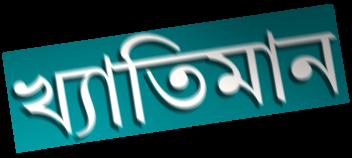
খ্যাতিমান